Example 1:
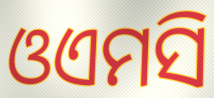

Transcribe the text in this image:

ଓଏମସି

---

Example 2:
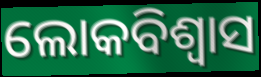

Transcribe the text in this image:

ଲୋକବିଶ୍ୱାସ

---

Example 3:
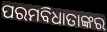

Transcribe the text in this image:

ପରମବିଧାତାଙ୍କର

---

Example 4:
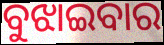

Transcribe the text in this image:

ବୁଝାଇବାର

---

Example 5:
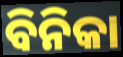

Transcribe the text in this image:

ବିନିକା